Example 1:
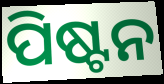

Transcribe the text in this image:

ପିଷ୍ଟନ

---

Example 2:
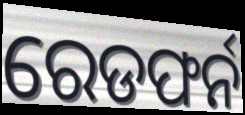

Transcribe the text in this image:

ରେଡଫର୍ନ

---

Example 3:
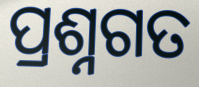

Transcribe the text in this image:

ପ୍ରଶ୍ନଗତ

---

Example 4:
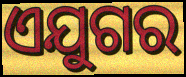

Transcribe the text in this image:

ଏଯୁଗର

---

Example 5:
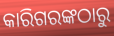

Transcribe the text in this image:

କାରିଗରଙ୍କଠାରୁ